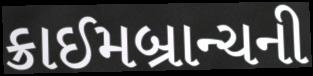
ક્રાઈમબ્રાન્ચની